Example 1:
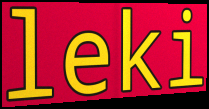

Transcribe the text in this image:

leki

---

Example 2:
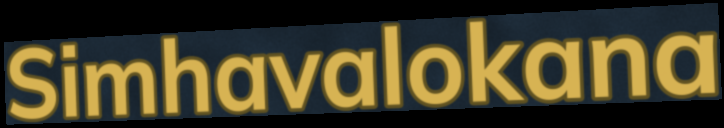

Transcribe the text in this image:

Simhavalokana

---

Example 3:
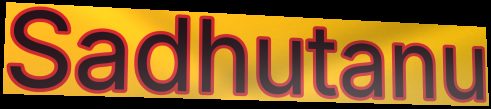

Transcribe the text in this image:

Sadhutanu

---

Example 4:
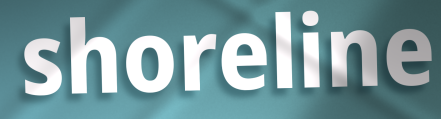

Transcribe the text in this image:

shoreline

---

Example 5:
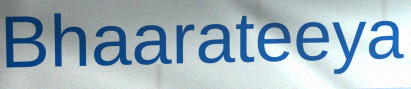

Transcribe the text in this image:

Bhaarateeya